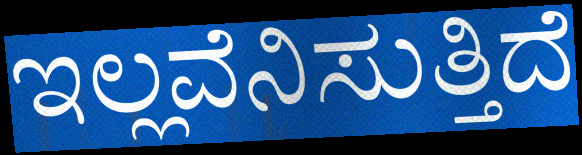
ಇಲ್ಲವೆನಿಸುತ್ತಿದೆ